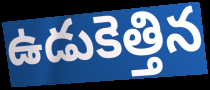
ఉడుకెత్తిన